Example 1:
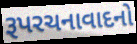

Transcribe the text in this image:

રૂપરચનાવાદનો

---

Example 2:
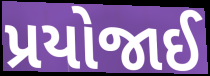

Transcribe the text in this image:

પ્રયોજાઈ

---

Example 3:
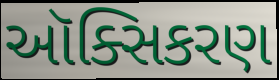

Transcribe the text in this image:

ઑક્સિકરણ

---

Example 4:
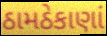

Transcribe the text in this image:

ઠામઠેકાણાં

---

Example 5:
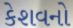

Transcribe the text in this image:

કેશવનો